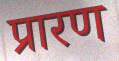
प्रारण